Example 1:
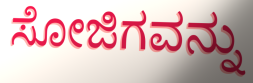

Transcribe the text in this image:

ಸೋಜಿಗವನ್ನು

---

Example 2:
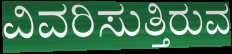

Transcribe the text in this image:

ವಿವರಿಸುತ್ತಿರುವ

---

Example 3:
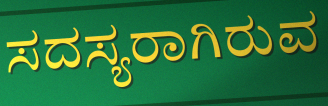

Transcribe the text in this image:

ಸದಸ್ಯರಾಗಿರುವ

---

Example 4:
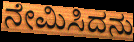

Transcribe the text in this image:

ನೇಮಿಸಿದನು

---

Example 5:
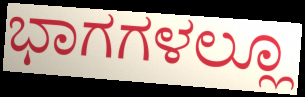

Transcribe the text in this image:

ಭಾಗಗಳಲ್ಲೂ